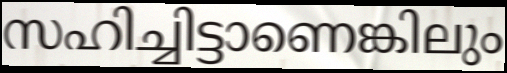
സഹിച്ചിട്ടാണെങ്കിലും